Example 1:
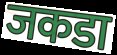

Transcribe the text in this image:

जकडा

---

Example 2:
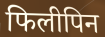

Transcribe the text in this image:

फिलीपिन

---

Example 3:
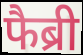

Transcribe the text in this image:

फैब्री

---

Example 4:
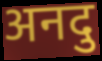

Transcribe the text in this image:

अनदु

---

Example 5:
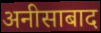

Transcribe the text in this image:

अनीसाबाद